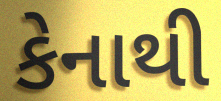
કેનાથી